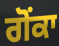
ਗੋਂਕਾ